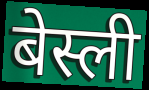
बेस्ली